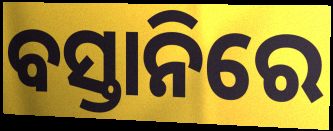
ବସ୍ତାନିରେ